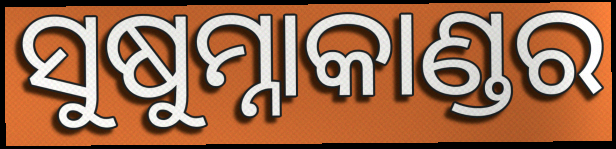
ସୁଷୁମ୍ନାକାଣ୍ଡର